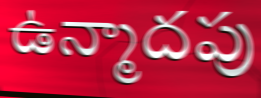
ఉన్మాదపు